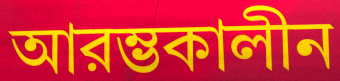
আরম্ভকালীন